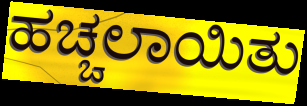
ಹಚ್ಚಲಾಯಿತು